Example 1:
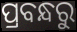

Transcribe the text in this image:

ପ୍ରବନ୍ଧରୁ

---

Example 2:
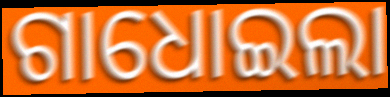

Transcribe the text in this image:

ଗାଧୋଇଲା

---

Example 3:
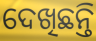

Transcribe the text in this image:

ଦେଖିଛନ୍ତି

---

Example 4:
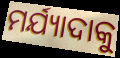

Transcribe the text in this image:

ମର୍ଯ୍ୟାଦାକୁ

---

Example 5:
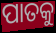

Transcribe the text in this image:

ପାତକୁ